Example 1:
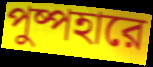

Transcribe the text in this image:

পুষ্পহারে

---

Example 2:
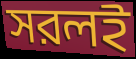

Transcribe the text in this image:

সরলই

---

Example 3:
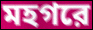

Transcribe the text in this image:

মহগরে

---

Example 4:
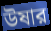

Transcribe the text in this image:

উষার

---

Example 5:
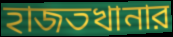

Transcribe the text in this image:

হাজতখানার